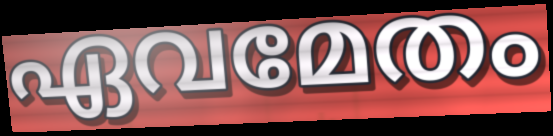
ഏവമേതം